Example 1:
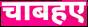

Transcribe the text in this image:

चाबहए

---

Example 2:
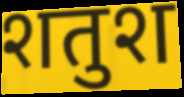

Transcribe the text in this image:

शतुश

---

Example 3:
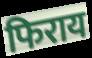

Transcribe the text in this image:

फिराय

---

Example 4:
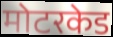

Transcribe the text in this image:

मोटरकेड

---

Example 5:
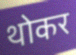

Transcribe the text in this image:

थोकर